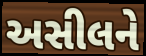
અસીલને